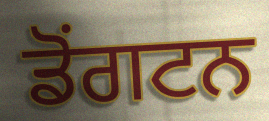
ਡੋਂਗਟਨ